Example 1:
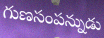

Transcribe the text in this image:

గుణసంపన్నుడు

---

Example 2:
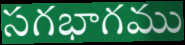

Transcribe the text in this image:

సగభాగము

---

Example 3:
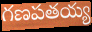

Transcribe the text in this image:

గణపతయ్య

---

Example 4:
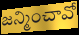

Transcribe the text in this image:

జన్మించావో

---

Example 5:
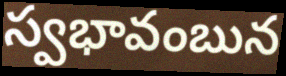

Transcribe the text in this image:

స్వభావంబున